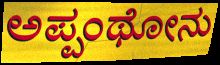
ಅಪ್ಪಂಥೋನು